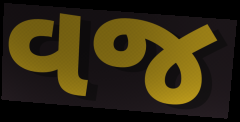
વજ